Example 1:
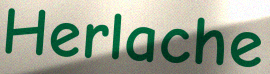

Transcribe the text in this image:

Herlache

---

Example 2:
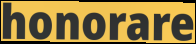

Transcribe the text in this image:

honorare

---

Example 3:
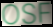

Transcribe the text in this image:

OSF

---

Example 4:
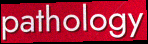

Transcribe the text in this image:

pathology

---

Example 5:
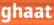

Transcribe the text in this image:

ghaat